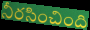
నీరసించింది